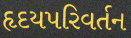
હૃદયપરિવર્તન